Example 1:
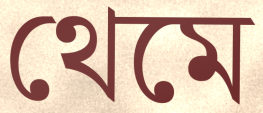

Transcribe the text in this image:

থেমে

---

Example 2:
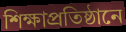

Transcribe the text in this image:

শিক্ষাপ্রতিষ্ঠানে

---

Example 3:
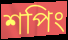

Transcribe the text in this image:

শপিং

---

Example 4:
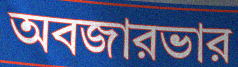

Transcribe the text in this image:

অবজারভার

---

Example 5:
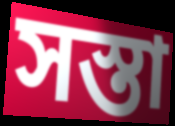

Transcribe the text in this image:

সস্তা